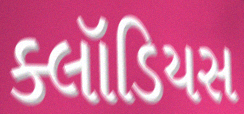
ક્લૉડિયસ